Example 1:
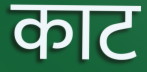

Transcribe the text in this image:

काट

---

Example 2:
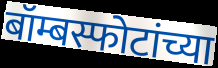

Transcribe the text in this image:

बॉम्बस्फोटांच्या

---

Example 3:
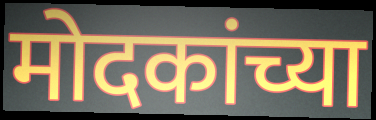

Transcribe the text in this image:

मोदकांच्या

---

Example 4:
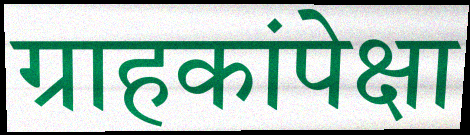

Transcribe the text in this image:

ग्राहकांपेक्षा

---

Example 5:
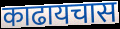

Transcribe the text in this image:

काढायचास